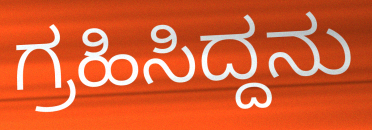
ಗ್ರಹಿಸಿದ್ದನು